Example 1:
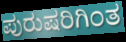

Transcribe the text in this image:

ಪುರುಷರಿಗಿಂತ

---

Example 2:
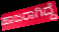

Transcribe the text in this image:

ಹಾಜರಾಗಿದ್ದೆ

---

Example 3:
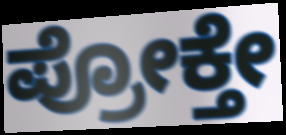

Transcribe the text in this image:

ಪ್ರೋಕ್ತೇ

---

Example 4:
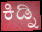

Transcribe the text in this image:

ಕಿಡ್ನಿ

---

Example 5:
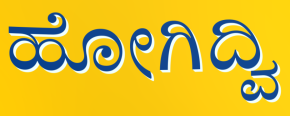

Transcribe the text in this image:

ಹೋಗಿದ್ವಿ